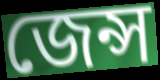
জেন্স